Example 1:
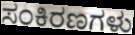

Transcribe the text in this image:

ಸಂಕಿರಣಗಳು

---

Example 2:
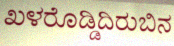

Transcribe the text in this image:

ಖಳರೊಡ್ಡಿದಿರುಬಿನ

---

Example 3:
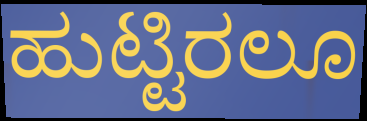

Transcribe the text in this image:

ಹುಟ್ಟಿರಲೂ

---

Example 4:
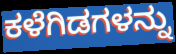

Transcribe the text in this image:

ಕಳೆಗಿಡಗಳನ್ನು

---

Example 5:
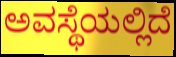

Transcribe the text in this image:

ಅವಸ್ಥೆಯಲ್ಲಿದೆ